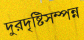
দুরদৃষ্টিসম্পন্ন